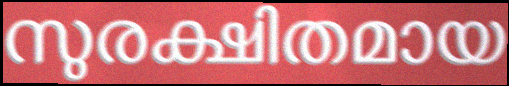
സുരക്ഷിതമായ